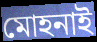
মোহনাই